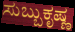
ಸುಬ್ಬುಕೃಷ್ಣ